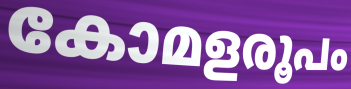
കോമളരൂപം